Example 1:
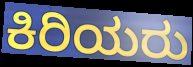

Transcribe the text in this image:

ಕಿರಿಯರು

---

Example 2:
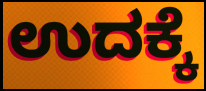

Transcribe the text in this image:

ಉದಕ್ಕೆ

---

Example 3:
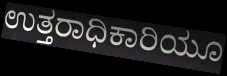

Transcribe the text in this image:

ಉತ್ತರಾಧಿಕಾರಿಯೂ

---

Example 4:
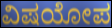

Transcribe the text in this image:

ವಿಷಯೋಪ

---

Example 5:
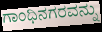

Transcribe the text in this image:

ಗಾಂಧಿನಗರವನ್ನು